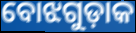
ବୋଝଗୁଡ଼ାକ